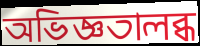
অভিজ্ঞতালব্ধ